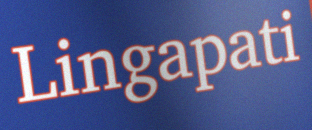
Lingapati